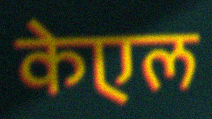
केएल